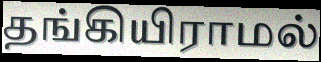
தங்கியிராமல்